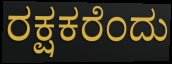
ರಕ್ಷಕರೆಂದು